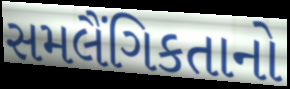
સમલૈંગિકતાનો